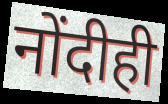
नोंदीही